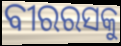
ବୀରରସକୁ